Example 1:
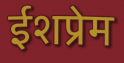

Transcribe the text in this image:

ईशप्रेम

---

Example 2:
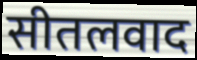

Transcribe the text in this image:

सीतलवाद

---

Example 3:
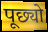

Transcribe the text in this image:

पूछ्यो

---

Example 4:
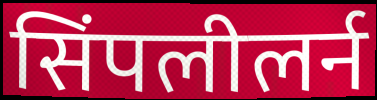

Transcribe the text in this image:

सिंपलीलर्न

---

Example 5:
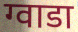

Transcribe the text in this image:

ग्वाडा